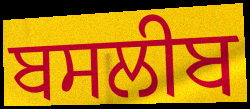
ਬਸਲੀਬ